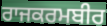
ਰਾਜਕਰਮਬੀਰ